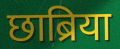
छाब्रिया